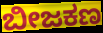
ಬೀಜಕಣ